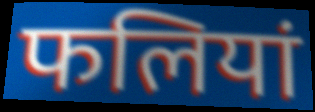
फलियां